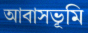
আবাসভূমি